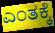
ಎಂತಕ್ಕೆ